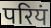
परियं